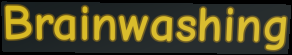
Brainwashing